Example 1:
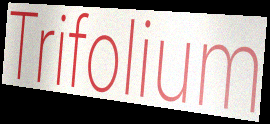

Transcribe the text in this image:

Trifolium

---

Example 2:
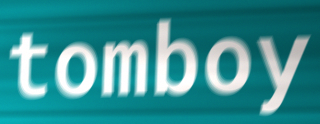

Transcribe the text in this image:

tomboy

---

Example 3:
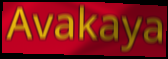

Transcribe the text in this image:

Avakaya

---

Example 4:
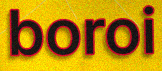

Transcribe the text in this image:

boroi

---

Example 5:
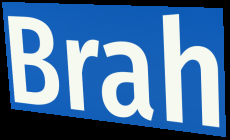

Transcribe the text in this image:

Brah